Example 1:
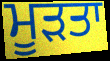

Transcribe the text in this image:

ਮੂੜਤਾ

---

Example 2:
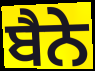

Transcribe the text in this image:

ਬੈਨੇ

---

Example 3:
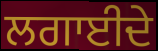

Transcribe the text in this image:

ਲਗਾਈਦੇ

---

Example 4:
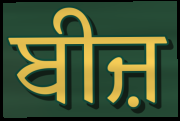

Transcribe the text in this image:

ਬੀਜ਼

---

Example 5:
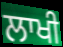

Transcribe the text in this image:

ਲਾਖੀ